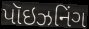
પૉઇઝનિંગ